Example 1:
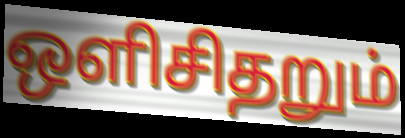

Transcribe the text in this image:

ஒளிசிதறும்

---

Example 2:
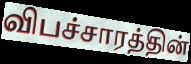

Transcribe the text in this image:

விபச்சாரத்தின்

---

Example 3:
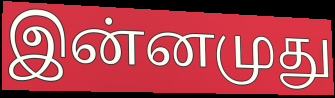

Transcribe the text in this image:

இன்னமுது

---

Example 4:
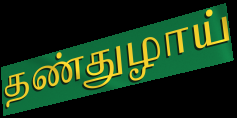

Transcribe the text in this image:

தண்துழாய்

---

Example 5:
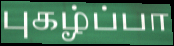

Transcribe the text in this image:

புகழ்ப்பா